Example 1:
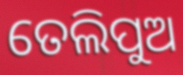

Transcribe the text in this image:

ତେଲିପୁଅ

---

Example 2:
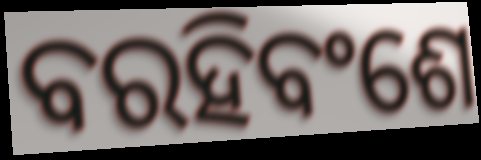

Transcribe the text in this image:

ବରହିବଂଶେ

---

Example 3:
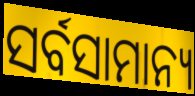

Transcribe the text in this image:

ସର୍ବସାମାନ୍ୟ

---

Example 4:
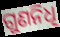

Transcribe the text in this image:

ଗୁଣନିଧି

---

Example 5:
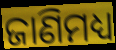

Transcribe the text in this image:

ଜାଣିମଧ୍ୟ